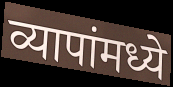
व्यापांमध्ये